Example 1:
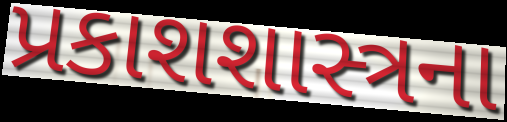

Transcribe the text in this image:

પ્રકાશશાસ્ત્રના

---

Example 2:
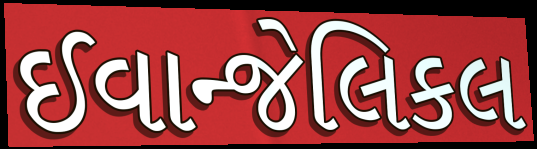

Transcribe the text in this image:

ઈવાન્જેલિકલ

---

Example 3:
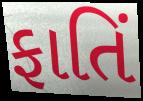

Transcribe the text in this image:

ફાતિં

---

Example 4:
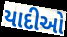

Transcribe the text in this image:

યાદીઓ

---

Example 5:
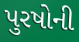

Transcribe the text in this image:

પુરષોની